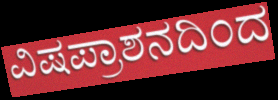
ವಿಷಪ್ರಾಶನದಿಂದ